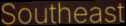
Southeast